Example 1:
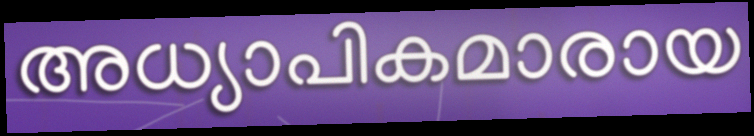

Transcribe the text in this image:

അധ്യാപികമാരായ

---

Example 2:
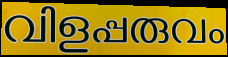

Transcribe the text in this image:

വിളപ്പരുവം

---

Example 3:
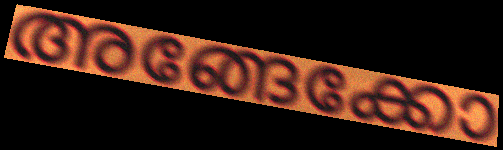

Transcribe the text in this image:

അങ്ങേക്കോ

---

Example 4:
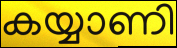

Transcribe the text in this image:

കയ്യാണി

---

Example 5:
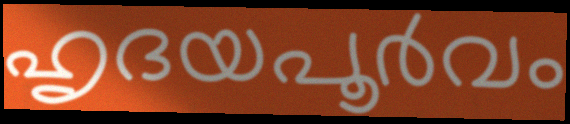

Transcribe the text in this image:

ഹൃദയപൂർവം